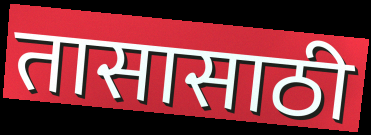
तासासाठी